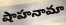
షాహనామా